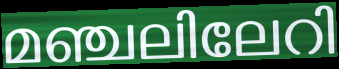
മഞ്ചലിലേറി